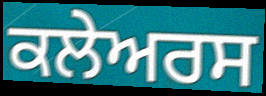
ਕਲੇਅਰਸ